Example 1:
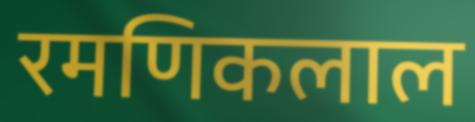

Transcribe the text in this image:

रमणिकलाल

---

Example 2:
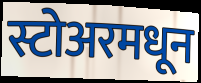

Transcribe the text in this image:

स्टोअरमधून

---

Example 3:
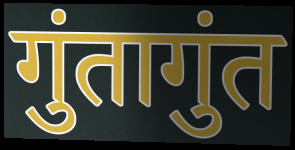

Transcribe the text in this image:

गुंतागुंत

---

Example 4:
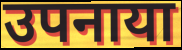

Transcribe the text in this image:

उपनाया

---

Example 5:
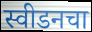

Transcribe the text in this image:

स्वीडनचा